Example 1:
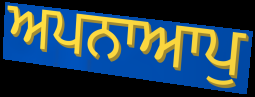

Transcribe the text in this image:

ਅਪਨਾਆਪੁ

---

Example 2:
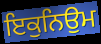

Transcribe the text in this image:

ਇਕੁਨਿਉਮ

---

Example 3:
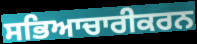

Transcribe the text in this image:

ਸਭਿਆਚਾਰੀਕਰਨ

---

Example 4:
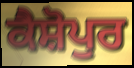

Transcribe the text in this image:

ਕੈਸ਼ੋਪੁਰ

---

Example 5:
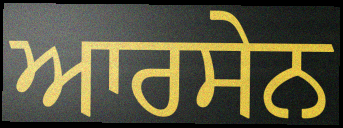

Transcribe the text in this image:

ਆਰਸੇਨ